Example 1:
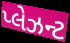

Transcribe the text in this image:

પ્લેઝન્ટ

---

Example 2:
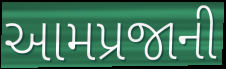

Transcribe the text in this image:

આમપ્રજાની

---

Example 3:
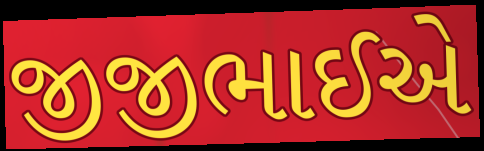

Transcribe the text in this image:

જીજીભાઈએ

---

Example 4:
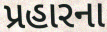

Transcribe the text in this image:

પ્રહારના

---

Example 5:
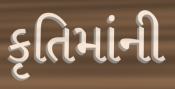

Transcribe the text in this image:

કૃતિમાંની